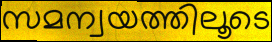
സമന്വയത്തിലൂടെ